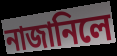
নাজানিলে